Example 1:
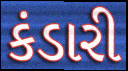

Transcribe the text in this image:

કંડારી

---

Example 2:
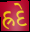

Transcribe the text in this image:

હ્રદે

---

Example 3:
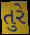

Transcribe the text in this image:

તુરે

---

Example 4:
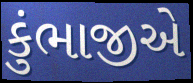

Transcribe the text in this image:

કુંભાજીએ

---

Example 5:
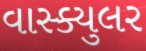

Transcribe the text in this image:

વાસ્ક્યુલર